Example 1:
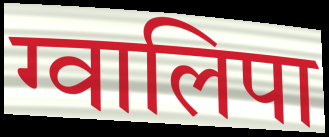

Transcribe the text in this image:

ग्वालिपा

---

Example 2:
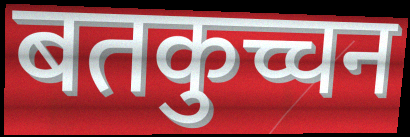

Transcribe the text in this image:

बतकुच्चन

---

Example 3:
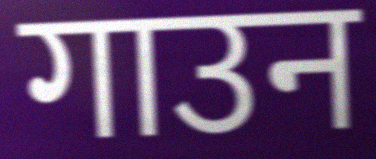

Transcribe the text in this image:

गाउन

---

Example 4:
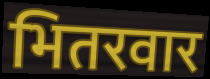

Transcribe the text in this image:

भितरवार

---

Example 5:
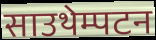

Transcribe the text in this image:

साउथेम्पटन